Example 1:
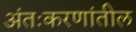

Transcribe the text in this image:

अंतःकरणांतील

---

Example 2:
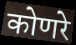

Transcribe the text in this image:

कोणरे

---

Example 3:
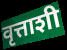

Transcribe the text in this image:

वृत्ताशी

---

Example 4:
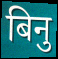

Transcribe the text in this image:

बिनु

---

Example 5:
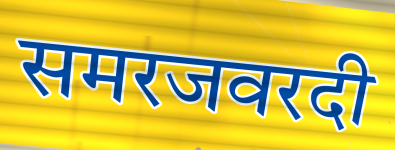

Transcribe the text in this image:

समरजवरदी